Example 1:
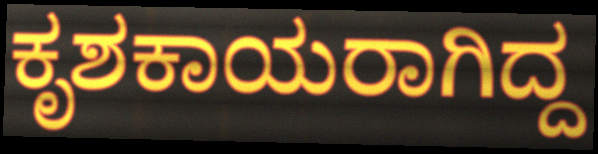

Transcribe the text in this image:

ಕೃಶಕಾಯರಾಗಿದ್ದ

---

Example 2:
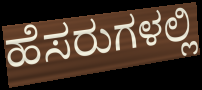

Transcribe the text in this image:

ಹೆಸರುಗಳಲ್ಲಿ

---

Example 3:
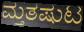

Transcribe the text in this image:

ಮ್ತತಷುಟ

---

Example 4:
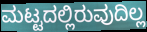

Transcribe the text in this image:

ಮಟ್ಟದಲ್ಲಿರುವುದಿಲ್ಲ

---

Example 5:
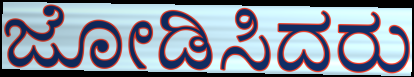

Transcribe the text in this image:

ಜೋಡಿಸಿದರು